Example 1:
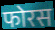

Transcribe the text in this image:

फोरस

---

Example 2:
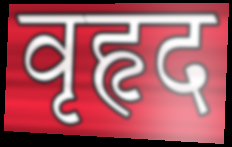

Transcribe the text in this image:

वृहृद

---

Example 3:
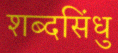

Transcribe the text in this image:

शब्दसिंधु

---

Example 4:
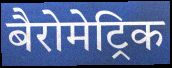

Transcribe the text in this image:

बैरोमेट्रिक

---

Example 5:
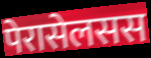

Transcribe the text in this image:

पेरासेलसस